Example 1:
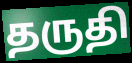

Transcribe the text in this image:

தருதி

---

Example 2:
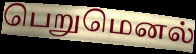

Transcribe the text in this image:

பெறுமெனல்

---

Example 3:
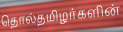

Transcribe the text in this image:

தொல்தமிழர்களின்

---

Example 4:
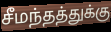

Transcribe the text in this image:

சீமந்தத்துக்கு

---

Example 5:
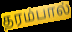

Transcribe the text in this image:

தரம்பால்